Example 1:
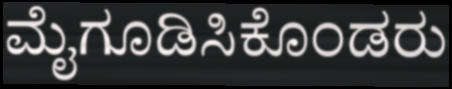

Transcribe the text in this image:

ಮೈಗೂಡಿಸಿಕೊಂಡರು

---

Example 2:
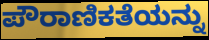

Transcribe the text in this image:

ಪೌರಾಣಿಕತೆಯನ್ನು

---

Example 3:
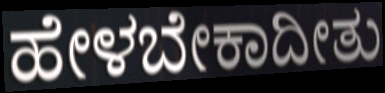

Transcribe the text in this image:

ಹೇಳಬೇಕಾದೀತು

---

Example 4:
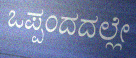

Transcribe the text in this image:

ಒಪ್ಪಂದದಲ್ಲೇ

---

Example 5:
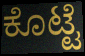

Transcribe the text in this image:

ಕೊಟ್ಟೆ